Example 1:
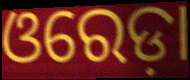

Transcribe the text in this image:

ଓରେଡ଼ା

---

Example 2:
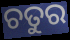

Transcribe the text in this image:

ଚତୁର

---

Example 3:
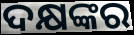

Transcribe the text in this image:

ଦକ୍ଷଙ୍କର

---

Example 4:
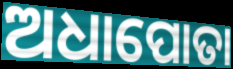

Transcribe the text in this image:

ଅଧାପୋତା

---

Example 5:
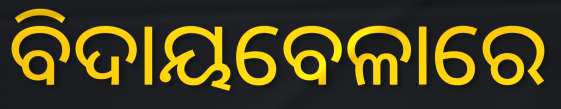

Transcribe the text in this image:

ବିଦାୟବେଳାରେ